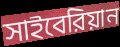
সাইবেরিয়ান